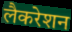
लैकरेशन